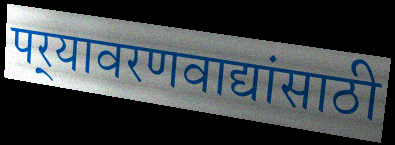
पर्यावरणवाद्यांसाठी